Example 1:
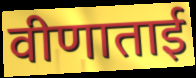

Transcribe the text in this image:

वीणाताई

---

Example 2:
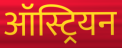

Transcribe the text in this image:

ऑस्ट्रियन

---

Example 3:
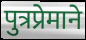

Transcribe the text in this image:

पुत्रप्रेमाने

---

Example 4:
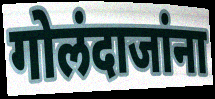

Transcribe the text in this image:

गोलंदाजांना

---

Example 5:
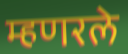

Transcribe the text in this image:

म्हणरले